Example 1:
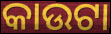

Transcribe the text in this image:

କାଉଟା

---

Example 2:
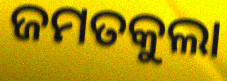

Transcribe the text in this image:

ଜମତକୁଲା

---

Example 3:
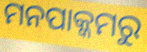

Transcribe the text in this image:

ମନପାକ୍କମରୁ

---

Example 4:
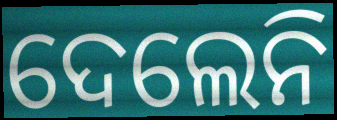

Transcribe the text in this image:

ଦେଲେନି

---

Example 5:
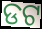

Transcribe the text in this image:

ଡଟ